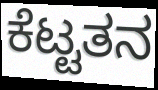
ಕೆಟ್ಟತನ